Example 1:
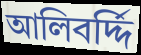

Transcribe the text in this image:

আলিবর্দ্দি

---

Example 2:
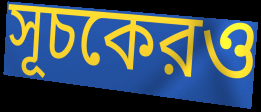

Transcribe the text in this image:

সূচকেরও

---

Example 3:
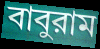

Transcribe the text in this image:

বাবুরাম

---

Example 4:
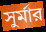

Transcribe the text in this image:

সুর্মার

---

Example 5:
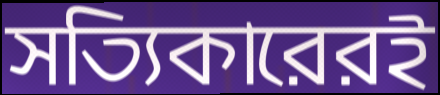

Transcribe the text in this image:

সত্যিকারেরই